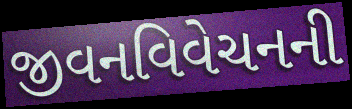
જીવનવિવેચનની